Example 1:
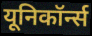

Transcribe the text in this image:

यूनिकॉर्न्स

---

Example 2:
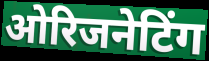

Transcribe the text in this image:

ओरिजनेटिंग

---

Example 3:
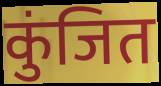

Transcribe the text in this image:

कुंजित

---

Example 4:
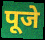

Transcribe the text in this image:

पूजे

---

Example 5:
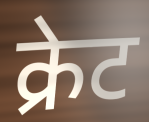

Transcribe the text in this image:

क्रेट